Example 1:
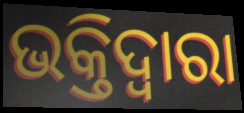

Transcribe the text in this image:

ଭକ୍ତିଦ୍ଵାରା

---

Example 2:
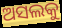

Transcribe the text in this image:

ଅସଲକୁ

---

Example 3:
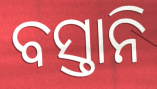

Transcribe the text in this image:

ବସ୍ତାନି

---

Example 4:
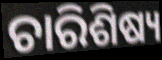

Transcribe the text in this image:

ଚାରିଶିଷ୍ୟ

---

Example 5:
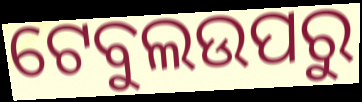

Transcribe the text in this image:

ଟେବୁଲଉପରୁ